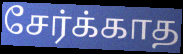
சேர்க்காத